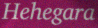
Hehegara